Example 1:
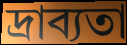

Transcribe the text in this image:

দ্রাব্যতা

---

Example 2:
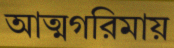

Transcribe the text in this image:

আত্মগরিমায়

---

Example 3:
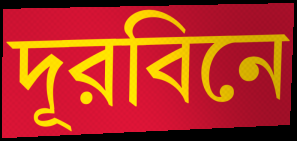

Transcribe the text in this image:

দূরবিনে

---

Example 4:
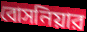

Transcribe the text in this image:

বোসনিয়ার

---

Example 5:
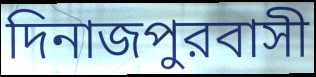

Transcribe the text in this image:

দিনাজপুরবাসী